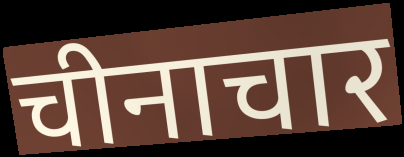
चीनाचार